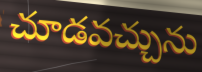
చూడవచ్చును